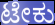
ಟೇಕು